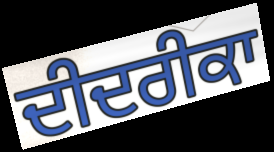
ਦੀਦਰੀਕਾ